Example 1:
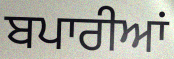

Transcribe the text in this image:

ਬਪਾਰੀਆਂ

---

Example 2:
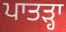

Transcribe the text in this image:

ਪਾਤੜ੍ਹਾ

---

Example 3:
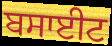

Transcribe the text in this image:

ਬਸਾਈਟ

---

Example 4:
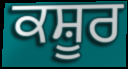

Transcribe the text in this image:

ਕਸ਼ੂਰ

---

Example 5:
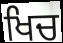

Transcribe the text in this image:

ਖਿਚ